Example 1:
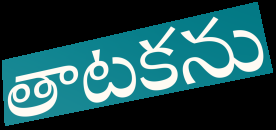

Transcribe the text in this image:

తాటకను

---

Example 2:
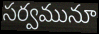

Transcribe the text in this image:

సర్వమునూ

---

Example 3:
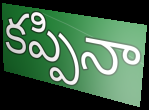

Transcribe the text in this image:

కప్పినా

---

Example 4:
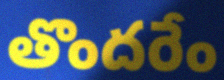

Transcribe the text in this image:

తొందరేం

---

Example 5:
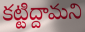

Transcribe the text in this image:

కట్టిద్దామని